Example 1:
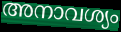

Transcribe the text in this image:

അനാവശ്യം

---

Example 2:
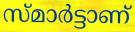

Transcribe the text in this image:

സ്മാർട്ടാണ്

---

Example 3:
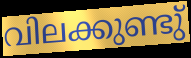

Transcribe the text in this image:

വിലക്കുണ്ടു്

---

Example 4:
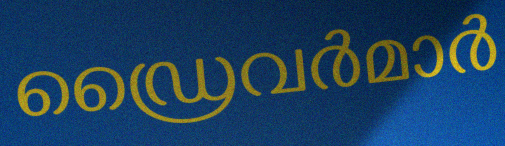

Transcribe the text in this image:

ഡ്രൈവർമാർ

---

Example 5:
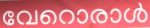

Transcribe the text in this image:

വേറൊരാൾ